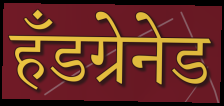
हॅंडग्रेनेड